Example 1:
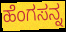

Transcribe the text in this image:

ಹೆಂಗಸನ್ನ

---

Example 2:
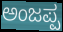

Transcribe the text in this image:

ಅಂಜಪ್ಪ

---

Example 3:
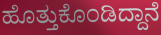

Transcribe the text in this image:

ಹೊತ್ತುಕೊಂಡಿದ್ದಾನೆ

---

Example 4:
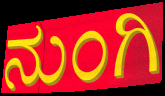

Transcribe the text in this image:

ನುಂಗಿ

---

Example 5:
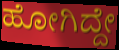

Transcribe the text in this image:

ಹೋಗಿದ್ದೇ